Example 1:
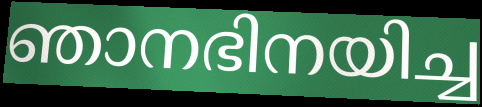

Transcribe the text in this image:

ഞാനഭിനയിച്ച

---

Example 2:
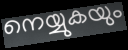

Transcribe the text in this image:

നെയ്യുകയും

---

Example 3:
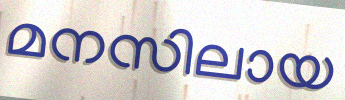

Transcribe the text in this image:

മനസിലായ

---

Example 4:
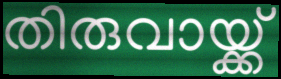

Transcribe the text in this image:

തിരുവായ്ക്ക്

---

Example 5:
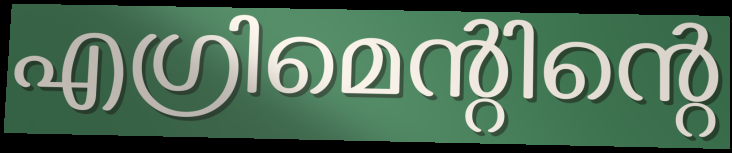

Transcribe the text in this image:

എഗ്രിമെന്റിന്റെ